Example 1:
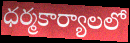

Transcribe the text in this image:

ధర్మకార్యాలలో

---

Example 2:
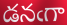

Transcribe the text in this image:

డనఁగా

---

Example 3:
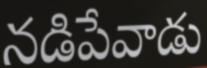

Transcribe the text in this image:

నడిపేవాడు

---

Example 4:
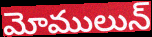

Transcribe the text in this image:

మోములున్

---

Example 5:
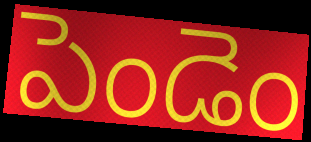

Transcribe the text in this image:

పెండెం